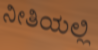
ನೀತಿಯಲ್ಲಿ